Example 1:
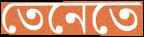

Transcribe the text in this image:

তেনেতে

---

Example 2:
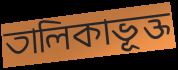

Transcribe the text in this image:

তালিকাভূক্ত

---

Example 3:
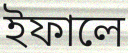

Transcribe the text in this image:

ইফালে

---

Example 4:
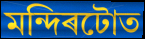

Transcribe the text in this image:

মন্দিৰটোত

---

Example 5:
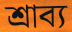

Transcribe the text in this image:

শ্ৰাব্য